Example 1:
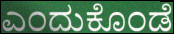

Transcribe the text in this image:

ಎಂದುಕೊಂಡೆ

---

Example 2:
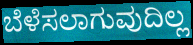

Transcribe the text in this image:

ಬೆಳೆಸಲಾಗುವುದಿಲ್ಲ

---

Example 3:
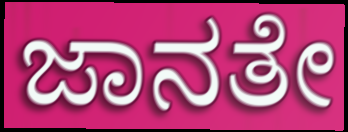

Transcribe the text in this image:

ಜಾನತೇ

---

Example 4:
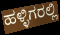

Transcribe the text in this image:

ಹಳ್ಳಿಗರಲ್ಲಿ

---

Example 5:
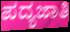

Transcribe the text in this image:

ಪದ್ಯಜಾತಿ